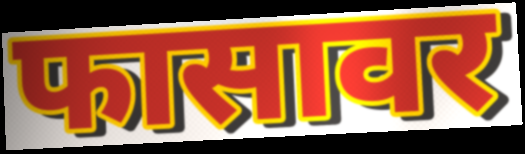
फासावर